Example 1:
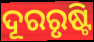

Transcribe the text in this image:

ଦୂରରୃଷ୍ଟି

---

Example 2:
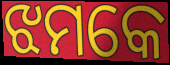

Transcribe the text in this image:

ଝମକେ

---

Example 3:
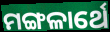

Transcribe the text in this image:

ମଙ୍ଗଳାର୍ଥେ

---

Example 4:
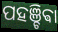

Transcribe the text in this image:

ପହଞ୍ଚିଵା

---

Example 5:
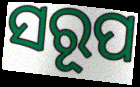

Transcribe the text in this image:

ସରୂପ